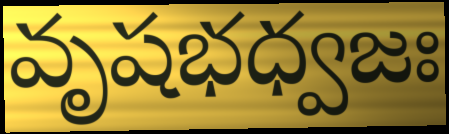
వృషభధ్వజః